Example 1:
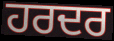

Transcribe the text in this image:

ਹਰਦਰ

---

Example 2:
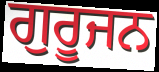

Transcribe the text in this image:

ਗੁਰੂਜਨ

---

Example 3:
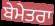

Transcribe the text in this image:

ਬੇਮੇਤਰਾ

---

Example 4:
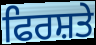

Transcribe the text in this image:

ਫਿਰਸ਼ਤੇ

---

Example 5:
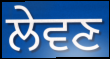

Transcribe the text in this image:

ਲੇਵਣ